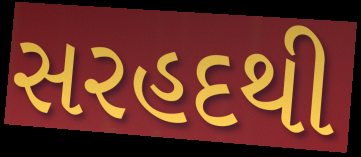
સરહદથી